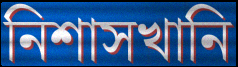
নিশাসখানি